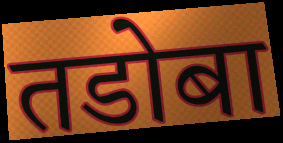
तडोबा